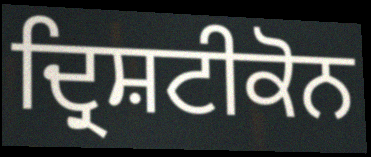
ਦ੍ਰਿਸ਼ਟੀਕੋਨ